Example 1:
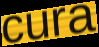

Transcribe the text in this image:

cura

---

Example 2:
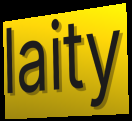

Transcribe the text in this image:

laity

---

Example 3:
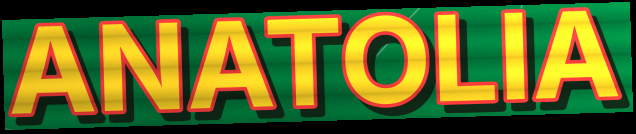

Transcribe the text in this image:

ANATOLIA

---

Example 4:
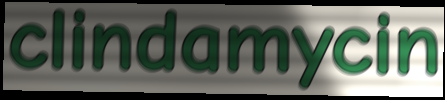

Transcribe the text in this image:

clindamycin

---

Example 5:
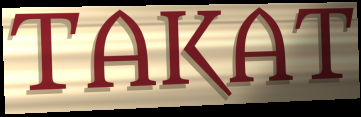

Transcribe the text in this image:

TAKAT